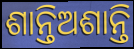
ଶାନ୍ତିଅଶାନ୍ତି